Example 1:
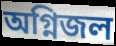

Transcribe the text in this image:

অগ্নিজল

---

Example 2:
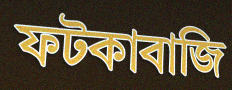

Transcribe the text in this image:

ফটকাবাজি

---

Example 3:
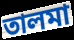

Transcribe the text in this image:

তালমা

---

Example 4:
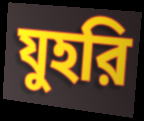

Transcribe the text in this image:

যুহরি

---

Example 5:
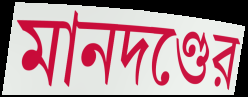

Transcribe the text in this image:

মানদণ্ডের